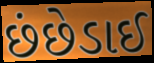
છંછેડાઈ